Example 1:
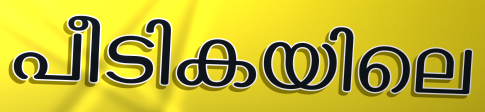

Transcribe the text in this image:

പീടികയിലെ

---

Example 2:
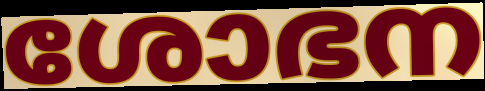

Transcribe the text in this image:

ശോഭന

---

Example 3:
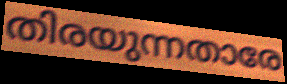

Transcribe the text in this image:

തിരയുന്നതാരേ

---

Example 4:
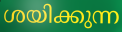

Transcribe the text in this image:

ശയിക്കുന്ന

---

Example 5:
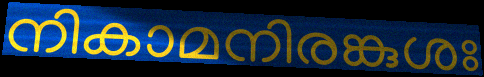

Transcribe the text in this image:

നികാമനിരങ്കുശഃ